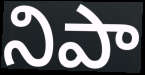
నిపా